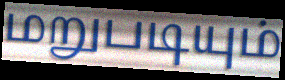
மறுபடியும்